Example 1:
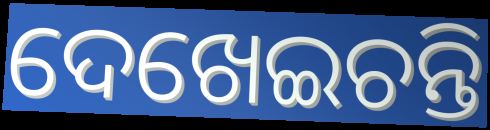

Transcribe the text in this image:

ଦେଖେଇଚନ୍ତି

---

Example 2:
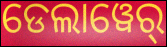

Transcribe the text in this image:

ଡେଲାୱେର୍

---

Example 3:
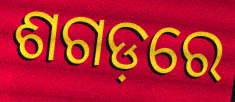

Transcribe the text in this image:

ଶଗଡ଼ରେ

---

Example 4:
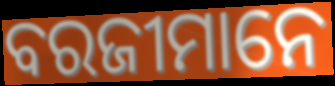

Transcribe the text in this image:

ବରଜୀମାନେ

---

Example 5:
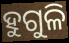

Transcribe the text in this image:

ହୁଗୁଳି